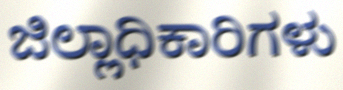
ಜಿಲ್ಲಾಧಿಕಾರಿಗಳು